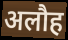
अलौह